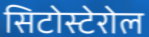
सिटोस्टेरोल